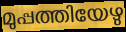
മുപ്പത്തിയേഴു